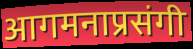
आगमनाप्रसंगी